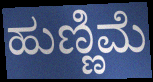
ಹುಣ್ಣಿಮೆ